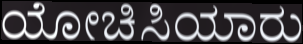
ಯೋಚಿಸಿಯಾರು